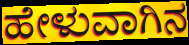
ಹೇಳುವಾಗಿನ